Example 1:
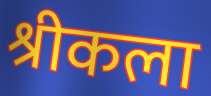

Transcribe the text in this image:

श्रीकला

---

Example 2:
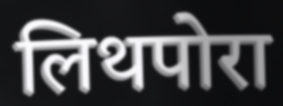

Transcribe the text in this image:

लिथपोरा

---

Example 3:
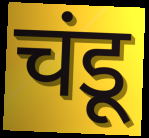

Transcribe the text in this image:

चंडू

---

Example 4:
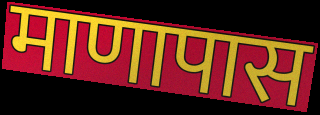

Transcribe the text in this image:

माणापास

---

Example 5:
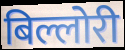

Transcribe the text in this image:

बिल्लोरी